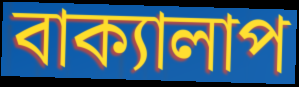
বাক্যালাপ